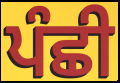
ਪੰਛੀ